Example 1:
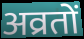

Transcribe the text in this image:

अव्रतों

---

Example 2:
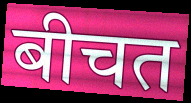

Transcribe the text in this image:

बीचत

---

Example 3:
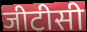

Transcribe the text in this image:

जीटीसी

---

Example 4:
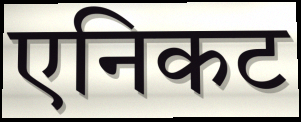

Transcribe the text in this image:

एनिकट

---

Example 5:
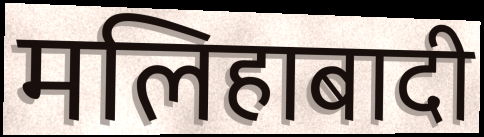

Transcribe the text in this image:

मलिहाबादी